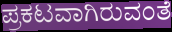
ಪ್ರಕಟವಾಗಿರುವಂತೆ